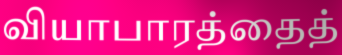
வியாபாரத்தைத்